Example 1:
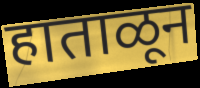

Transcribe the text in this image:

हाताळून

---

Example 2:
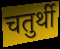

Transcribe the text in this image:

चतुर्थी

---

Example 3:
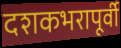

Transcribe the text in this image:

दशकभरापूर्वी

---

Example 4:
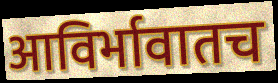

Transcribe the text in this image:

आविर्भावातच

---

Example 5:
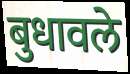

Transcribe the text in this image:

बुधावले